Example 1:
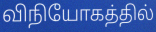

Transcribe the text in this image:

விநியோகத்தில்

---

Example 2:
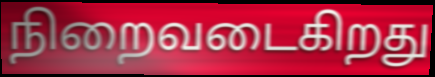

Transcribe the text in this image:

நிறைவடைகிறது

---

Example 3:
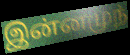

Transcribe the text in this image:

இன்னமுந்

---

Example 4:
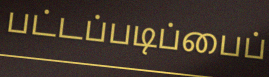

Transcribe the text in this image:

பட்டப்படிப்பைப்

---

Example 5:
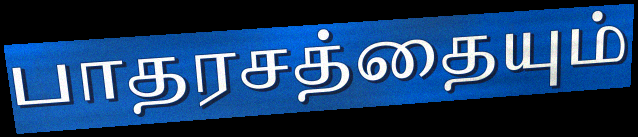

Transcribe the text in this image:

பாதரசத்தையும்